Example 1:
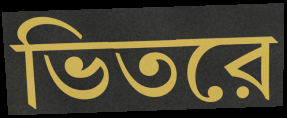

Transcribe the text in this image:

ভিতরে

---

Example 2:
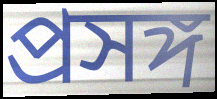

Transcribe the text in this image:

প্রসঙ্গ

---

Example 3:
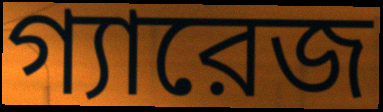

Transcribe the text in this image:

গ্যারেজ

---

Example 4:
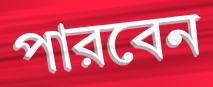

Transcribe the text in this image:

পারবেন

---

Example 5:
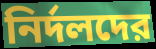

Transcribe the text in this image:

নির্দলদের